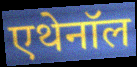
एथेनॉल